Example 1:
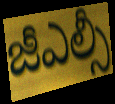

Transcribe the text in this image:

జీఎల్సీ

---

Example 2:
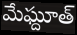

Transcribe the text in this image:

మేఘ్దూత్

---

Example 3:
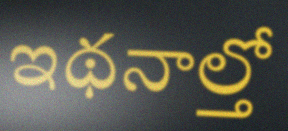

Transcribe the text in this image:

ఇథనాల్తో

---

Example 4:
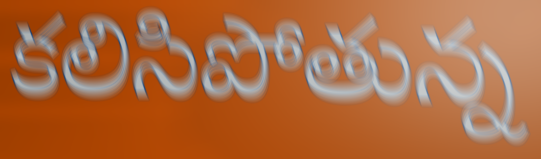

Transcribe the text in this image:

కలిసిపోతున్న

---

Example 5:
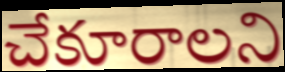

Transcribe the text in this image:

చేకూరాలని